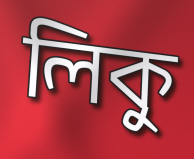
লিকু